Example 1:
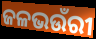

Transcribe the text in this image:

ଜଳଭଉଁରୀ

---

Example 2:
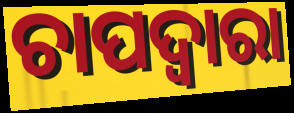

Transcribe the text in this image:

ଚାପଦ୍ବାରା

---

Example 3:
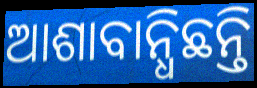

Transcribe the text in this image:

ଆଶାବାନ୍ଧିଛନ୍ତି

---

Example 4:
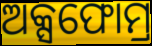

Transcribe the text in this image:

ଅକ୍ସଫୋମ୍ର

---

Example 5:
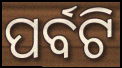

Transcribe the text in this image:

ପର୍ବଟି